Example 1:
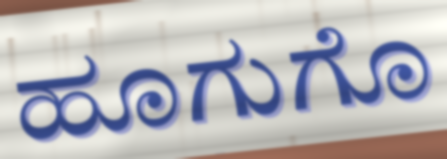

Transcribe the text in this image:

ಹೂಗುಗೊ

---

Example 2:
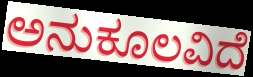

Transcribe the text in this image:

ಅನುಕೂಲವಿದೆ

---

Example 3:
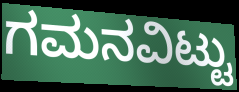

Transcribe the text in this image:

ಗಮನವಿಟ್ಟು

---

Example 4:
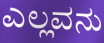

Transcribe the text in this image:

ಎಲ್ಲವನು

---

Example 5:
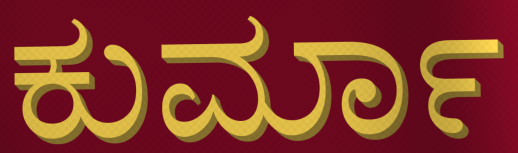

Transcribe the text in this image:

ಕುರ್ಮಾ